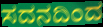
ಸದನದಿಂದ